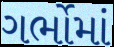
ગર્ભોમાં